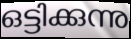
ഒട്ടിക്കുന്നു